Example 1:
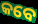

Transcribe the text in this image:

କବେ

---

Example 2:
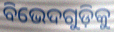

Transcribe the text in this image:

ବିଭେଦଗୁଡ଼ିକୁ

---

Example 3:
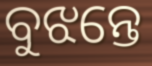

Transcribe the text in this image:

ବୁଝନ୍ତେ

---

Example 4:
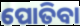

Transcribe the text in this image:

ପୋତିବା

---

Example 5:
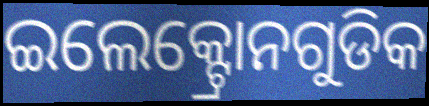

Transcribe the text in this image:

ଇଲେକ୍ଟ୍ରୋନଗୁଡିକ